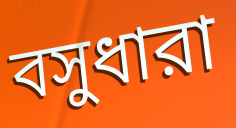
বসুধারা